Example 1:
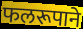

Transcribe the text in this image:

फलरूपाने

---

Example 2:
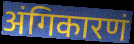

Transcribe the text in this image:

अंगिकारणं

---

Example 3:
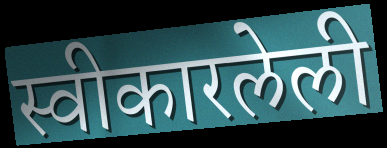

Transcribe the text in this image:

स्वीकारलेली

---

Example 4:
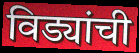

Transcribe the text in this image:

विड्यांची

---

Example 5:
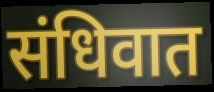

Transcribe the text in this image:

संधिवात